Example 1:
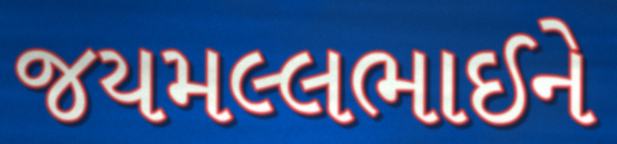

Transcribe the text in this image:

જયમલ્લભાઈને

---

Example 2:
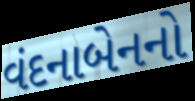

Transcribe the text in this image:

વંદનાબેનનો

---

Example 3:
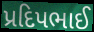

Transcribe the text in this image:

પ્રદિપભાઈ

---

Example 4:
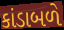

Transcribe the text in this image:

કાંડાબળે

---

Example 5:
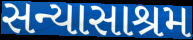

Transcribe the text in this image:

સન્યાસાશ્રમ